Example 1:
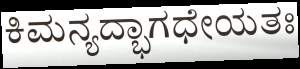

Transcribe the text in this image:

ಕಿಮನ್ಯದ್ಭಾಗಧೇಯತಃ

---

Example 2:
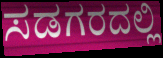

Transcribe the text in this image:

ಸಡಗರದಲ್ಲಿ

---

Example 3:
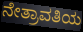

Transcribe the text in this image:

ನೇತ್ರಾವತಿಯ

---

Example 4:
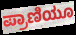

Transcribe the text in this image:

ಪ್ರಾಣಿಯೂ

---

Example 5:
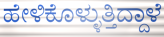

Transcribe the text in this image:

ಹೇಳಿಕೊಳ್ಳುತ್ತಿದ್ದಾಳೆ